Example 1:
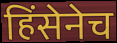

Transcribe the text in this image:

हिंसेनेच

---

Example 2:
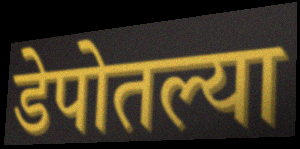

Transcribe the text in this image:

डेपोतल्या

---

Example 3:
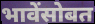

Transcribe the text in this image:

भावेंसोबत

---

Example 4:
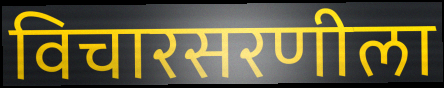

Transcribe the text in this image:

विचारसरणीला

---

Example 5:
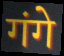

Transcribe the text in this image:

गंगे